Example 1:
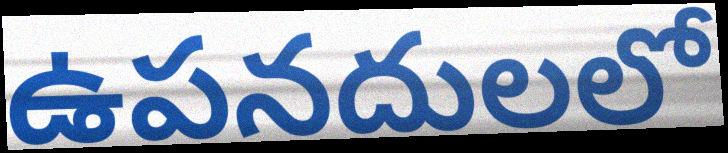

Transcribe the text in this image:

ఉపనదులలో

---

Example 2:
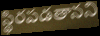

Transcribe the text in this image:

స్థిరపడతానని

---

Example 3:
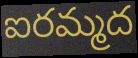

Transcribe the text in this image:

ఐరమ్మద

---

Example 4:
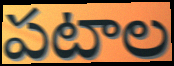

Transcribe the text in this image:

పటాల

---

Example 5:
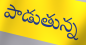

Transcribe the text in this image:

పాడుతున్న